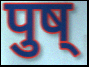
पुष्